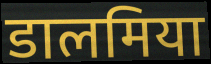
डालमिया